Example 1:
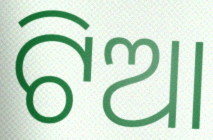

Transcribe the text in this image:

ଟିଆ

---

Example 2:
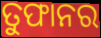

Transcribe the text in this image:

ତୁଫାନର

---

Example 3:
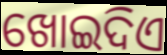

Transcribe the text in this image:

ଖୋଇଦିଏ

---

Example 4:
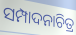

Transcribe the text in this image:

ସମ୍ପାଦନାଚିତ୍ର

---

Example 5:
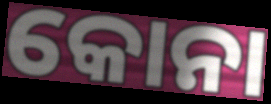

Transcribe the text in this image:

କୋନା